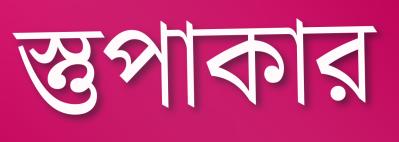
স্তুপাকার